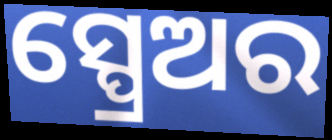
ସ୍ପ୍ରେଅର